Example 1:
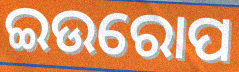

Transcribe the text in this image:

ଇଉରୋପ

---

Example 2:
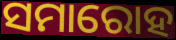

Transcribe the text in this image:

ସମାରୋହ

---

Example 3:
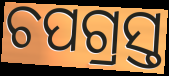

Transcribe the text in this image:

ଚପଗ୍ରସ୍ତ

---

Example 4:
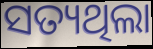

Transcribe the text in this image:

ସତ୍ୟଥିଲା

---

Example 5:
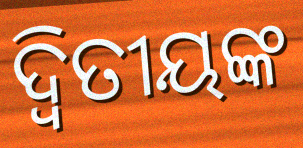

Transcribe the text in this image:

ଦ୍ଵିତୀୟଙ୍କ